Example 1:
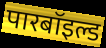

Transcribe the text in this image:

पारबॉइल्ड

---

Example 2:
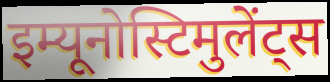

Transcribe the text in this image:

इम्यूनोस्टिमुलेंट्स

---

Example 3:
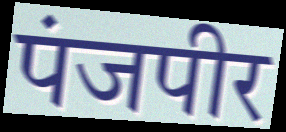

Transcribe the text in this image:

पंजपीर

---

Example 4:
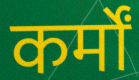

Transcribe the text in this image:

कर्मों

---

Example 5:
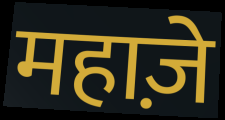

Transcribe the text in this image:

महाज़े